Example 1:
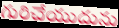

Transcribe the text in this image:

గురిచేయుదును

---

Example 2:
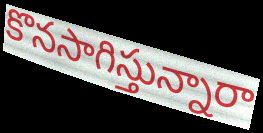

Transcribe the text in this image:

కొనసాగిస్తున్నారా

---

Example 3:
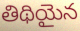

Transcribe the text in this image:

తిథియైన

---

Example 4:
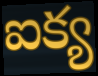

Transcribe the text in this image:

ఐక్య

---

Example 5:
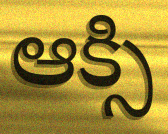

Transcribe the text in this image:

ఆక్సి